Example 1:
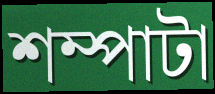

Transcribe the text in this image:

শম্পাটা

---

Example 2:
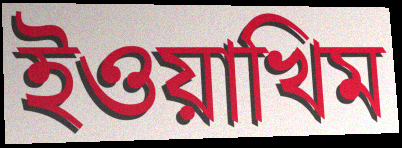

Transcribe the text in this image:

ইওয়াখিম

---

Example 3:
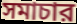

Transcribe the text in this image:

সমাচার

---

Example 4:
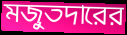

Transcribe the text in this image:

মজুতদারের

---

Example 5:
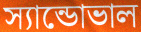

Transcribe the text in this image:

স্যান্ডোভাল